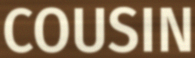
COUSIN